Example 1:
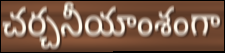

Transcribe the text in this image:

చర్చనీయాంశంగా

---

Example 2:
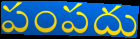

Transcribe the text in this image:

పంపదు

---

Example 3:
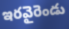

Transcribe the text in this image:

ఇరవైరెండు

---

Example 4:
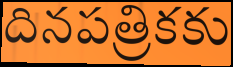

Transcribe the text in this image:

దినపత్రికకు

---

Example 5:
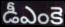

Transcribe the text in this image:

డీఎంకె